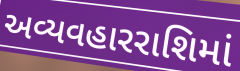
અવ્યવહારરાશિમાં